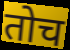
तोच